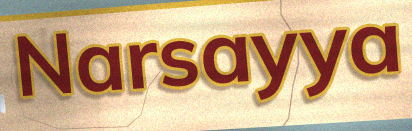
Narsayya